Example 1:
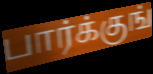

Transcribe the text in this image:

பார்க்குங்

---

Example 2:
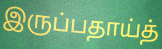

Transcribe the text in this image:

இருப்பதாய்த்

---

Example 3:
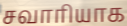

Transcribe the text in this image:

சவாரியாக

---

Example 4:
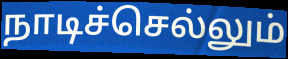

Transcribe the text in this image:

நாடிச்செல்லும்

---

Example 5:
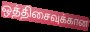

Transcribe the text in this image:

ஒத்திசைவுக்கான